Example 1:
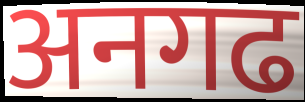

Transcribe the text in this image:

अनगढ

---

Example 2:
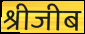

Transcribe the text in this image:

श्रीजीब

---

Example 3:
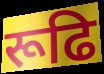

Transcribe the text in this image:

रूढि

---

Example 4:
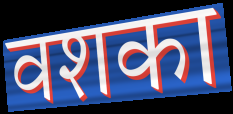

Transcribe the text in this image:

वशका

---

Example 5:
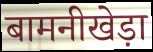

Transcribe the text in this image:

बामनीखेड़ा